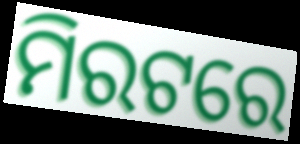
ମିରଟରେ